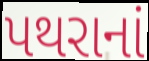
પથરાનાં